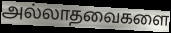
அல்லாதவைகளை